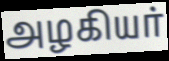
அழகியர்